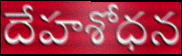
దేహశోధన